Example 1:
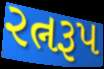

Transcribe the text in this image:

રત્નરૂપ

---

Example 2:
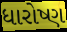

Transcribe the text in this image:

ધારોષ્ણ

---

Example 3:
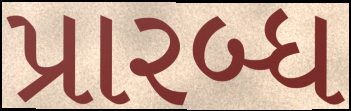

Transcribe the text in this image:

પ્રારબ્ધ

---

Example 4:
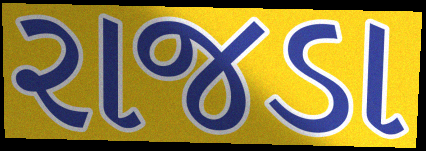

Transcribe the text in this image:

રાજડા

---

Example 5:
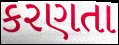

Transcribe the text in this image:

કરણતા